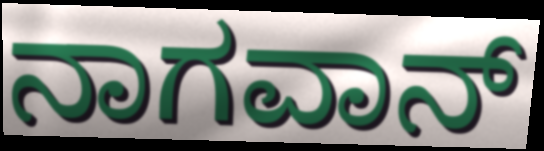
ನಾಗವಾನ್